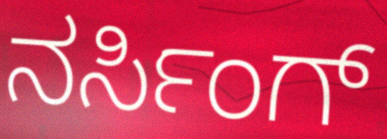
ನರ್ಸಿಂಗ್